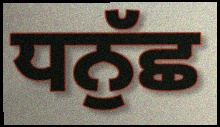
ਧਨੁੱਛ